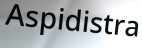
Aspidistra